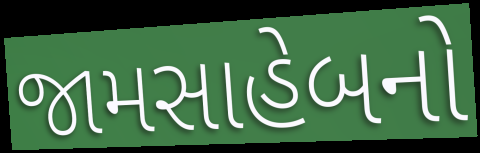
જામસાહેબનો